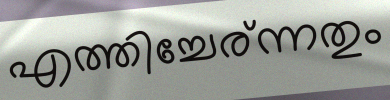
എത്തിച്ചേര്ന്നതും